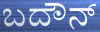
ಬದೌನ್